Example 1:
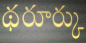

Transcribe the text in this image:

థరూర్కు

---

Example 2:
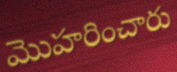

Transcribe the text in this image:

మొహరించారు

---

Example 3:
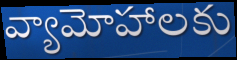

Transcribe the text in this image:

వ్యామోహాలకు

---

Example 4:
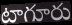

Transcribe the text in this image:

టాగూరు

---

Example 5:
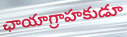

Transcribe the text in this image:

ఛాయాగ్రాహకుడూ